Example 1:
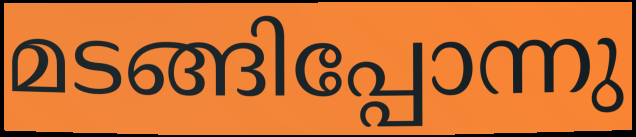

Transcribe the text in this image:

മടങ്ങിപ്പോന്നു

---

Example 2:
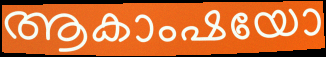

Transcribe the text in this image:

ആകാംഷയോ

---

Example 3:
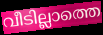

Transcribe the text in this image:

വീടില്ലാത്തെ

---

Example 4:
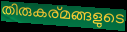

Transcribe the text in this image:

തിരുകര്മങ്ങളുടെ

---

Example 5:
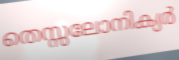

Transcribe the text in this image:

തെസ്സലോനിക്യർ